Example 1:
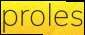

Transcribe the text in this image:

proles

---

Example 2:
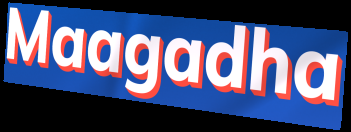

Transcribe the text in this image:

Maagadha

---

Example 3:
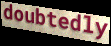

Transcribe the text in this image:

doubtedly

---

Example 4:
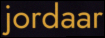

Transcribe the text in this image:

jordaar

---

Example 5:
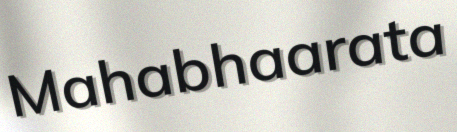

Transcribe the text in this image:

Mahabhaarata